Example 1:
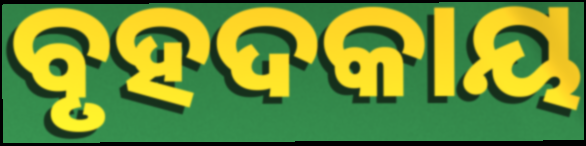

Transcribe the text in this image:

ବୃହଦକାୟ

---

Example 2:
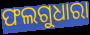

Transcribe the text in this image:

ଫଲଗୁଧାରା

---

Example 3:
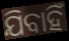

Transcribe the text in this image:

ଯିବାହିଁ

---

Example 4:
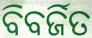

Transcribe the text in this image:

ବିବର୍ଜିତ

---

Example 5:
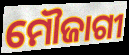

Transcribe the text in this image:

ମୌଜାଗୀ